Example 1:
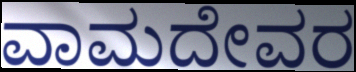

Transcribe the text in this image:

ವಾಮದೇವರ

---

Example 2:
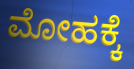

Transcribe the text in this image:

ಮೋಹಕ್ಕೆ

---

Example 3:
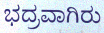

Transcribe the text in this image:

ಭದ್ರವಾಗಿರು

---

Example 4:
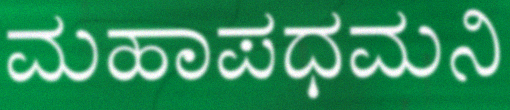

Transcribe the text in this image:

ಮಹಾಪಧಮನಿ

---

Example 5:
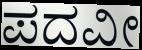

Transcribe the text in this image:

ಪದವೀ